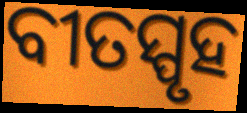
ବୀତସ୍ପୃହ